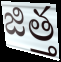
జిత్త